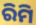
ରିମି